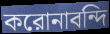
করোনাবন্দি